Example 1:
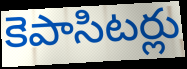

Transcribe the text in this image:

కెపాసిటర్లు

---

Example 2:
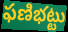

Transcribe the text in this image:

ఫణిభట్టు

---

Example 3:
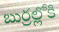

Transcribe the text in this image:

బుర్రల్లోకి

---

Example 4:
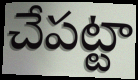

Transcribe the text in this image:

చేపట్టా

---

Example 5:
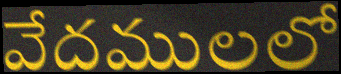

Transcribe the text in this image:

వేదములలో